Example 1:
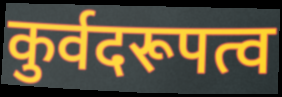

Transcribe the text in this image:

कुर्वदरूपत्व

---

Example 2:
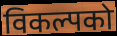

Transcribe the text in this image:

विकल्पको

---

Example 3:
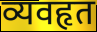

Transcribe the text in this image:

व्यवहृत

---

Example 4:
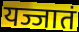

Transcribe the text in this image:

यज्जातं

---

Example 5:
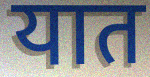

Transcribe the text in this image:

यात